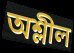
অশ্লীল